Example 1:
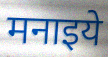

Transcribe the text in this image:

मनाइये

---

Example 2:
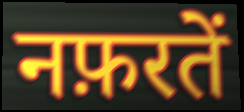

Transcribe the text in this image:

नफ़रतें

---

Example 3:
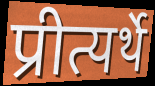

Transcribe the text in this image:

प्रीत्यर्थे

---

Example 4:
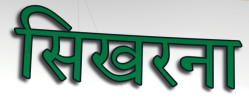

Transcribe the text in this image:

सिखरना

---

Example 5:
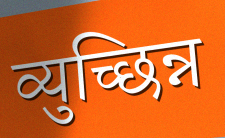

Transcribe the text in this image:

व्युच्छिन्न